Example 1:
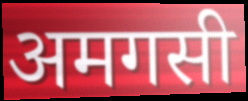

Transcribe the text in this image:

अमगसी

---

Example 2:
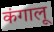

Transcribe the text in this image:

कंगालू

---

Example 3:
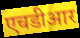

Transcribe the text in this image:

एचडीआर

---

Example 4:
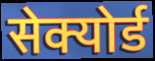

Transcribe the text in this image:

सेक्योर्ड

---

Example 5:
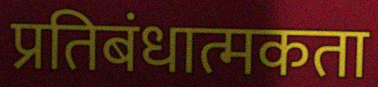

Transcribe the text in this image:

प्रतिबंधात्मकता